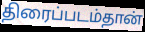
திரைப்படம்தான்